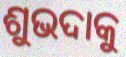
ଶୁଭଦାକୁ